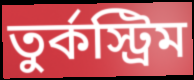
তুর্কস্ট্রিম